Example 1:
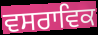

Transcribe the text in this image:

ਵਸਰਾਵਿਕ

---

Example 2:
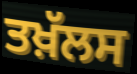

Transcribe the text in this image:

ਤਖ਼ੱਲਸ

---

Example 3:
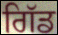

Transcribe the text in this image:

ਗਿੱਡ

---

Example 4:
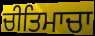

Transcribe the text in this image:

ਚੀਤਿਮਾਚਾ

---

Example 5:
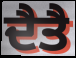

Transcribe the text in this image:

ਦੈਤੈ